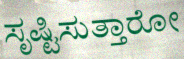
ಸೃಷ್ಟಿಸುತ್ತಾರೋ